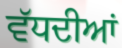
ਵੱਧਦੀਆਂ